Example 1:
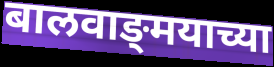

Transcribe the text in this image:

बालवाङ्‌मयाच्या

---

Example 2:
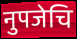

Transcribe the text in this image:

नुपजेचि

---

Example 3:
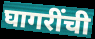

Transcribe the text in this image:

घागरींची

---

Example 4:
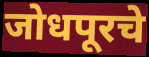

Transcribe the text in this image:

जोधपूरचे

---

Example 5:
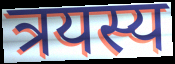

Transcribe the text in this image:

त्रयस्य